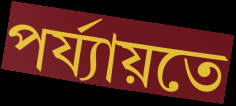
পৰ্য্যায়তে